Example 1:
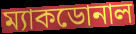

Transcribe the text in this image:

ম্যাকডোনাল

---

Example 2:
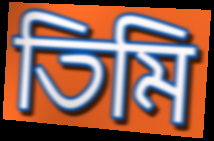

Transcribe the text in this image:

তিমি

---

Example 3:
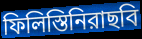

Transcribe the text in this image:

ফিলিস্তিনিরাছবি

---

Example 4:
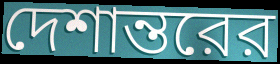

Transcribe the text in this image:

দেশান্তরের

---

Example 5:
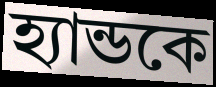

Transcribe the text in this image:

হ্যান্ডকে